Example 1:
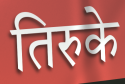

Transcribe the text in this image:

तिरुके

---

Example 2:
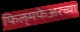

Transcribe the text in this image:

फिल्मफेअरच्या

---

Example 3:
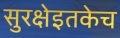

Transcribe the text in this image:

सुरक्षेइतकेच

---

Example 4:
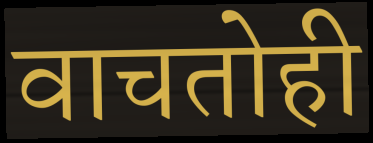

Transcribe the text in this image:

वाचतोही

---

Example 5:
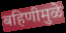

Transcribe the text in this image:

बहिणीमुळे